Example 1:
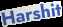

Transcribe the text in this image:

Harshit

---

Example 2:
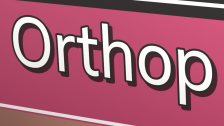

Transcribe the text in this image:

Orthop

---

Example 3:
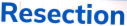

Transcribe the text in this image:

Resection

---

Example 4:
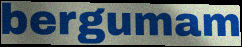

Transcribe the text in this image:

bergumam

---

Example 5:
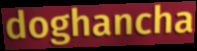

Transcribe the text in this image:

doghancha